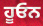
ਹੂਓਨ